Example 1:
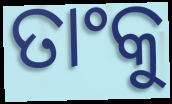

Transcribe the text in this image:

ତାଂକୁ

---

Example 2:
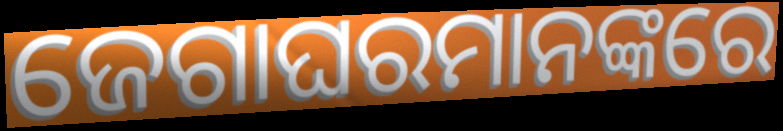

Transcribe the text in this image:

ଜେଗାଘରମାନଙ୍କରେ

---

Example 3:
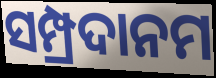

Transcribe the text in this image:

ସମ୍ପ୍ରଦାନମ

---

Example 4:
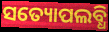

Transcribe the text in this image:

ସତ୍ୟୋପଲବ୍ଧି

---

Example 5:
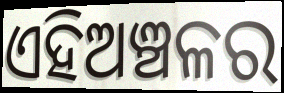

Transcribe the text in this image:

ଏହିଅଞ୍ଚଳର